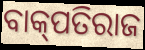
ବାକ୍‌ପତିରାଜ